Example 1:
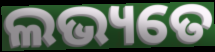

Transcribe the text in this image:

ଲଭ୍ୟତେ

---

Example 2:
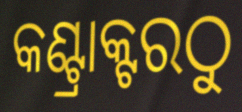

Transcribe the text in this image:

କଣ୍ଟ୍ରାକ୍ଟରଠୁ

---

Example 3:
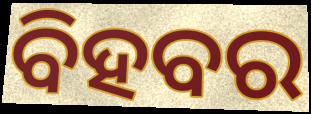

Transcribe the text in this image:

ବିହବର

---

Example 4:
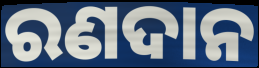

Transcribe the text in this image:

ରଣଦାନ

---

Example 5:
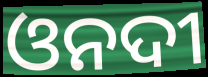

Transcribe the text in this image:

ଓନଦୀ